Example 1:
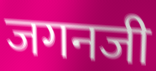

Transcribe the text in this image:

जगनजी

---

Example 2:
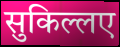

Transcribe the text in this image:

सुकिल्लए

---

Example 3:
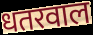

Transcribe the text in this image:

धतरवाल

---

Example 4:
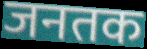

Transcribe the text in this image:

जनतक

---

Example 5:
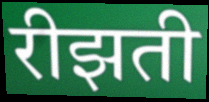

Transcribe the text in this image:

रीझती